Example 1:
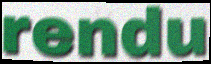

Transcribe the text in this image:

rendu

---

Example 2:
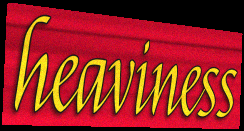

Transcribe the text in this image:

heaviness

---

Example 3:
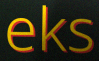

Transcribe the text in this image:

eks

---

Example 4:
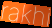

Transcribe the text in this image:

rakhi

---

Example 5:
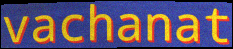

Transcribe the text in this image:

vachanat